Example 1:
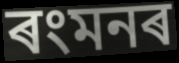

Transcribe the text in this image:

ৰংমনৰ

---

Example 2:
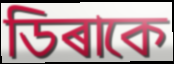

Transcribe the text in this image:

ডিৰাকে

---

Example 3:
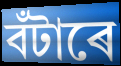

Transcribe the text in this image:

বঁটাৰে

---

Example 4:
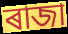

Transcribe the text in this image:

ৰাজা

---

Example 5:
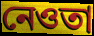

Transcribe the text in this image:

নেওতা